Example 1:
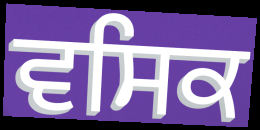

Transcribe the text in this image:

ਵਸਿਕ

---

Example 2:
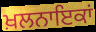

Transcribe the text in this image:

ਖ਼ਲਨਾਇਕਾਂ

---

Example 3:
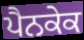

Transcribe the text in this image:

ਪੈਨਕੇਕ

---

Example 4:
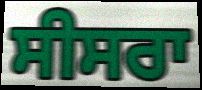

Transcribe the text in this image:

ਸੀਸਰਾ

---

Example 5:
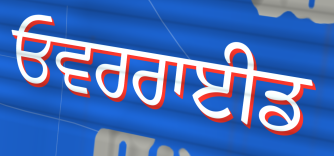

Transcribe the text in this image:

ਓਵਰਰਾਈਡ